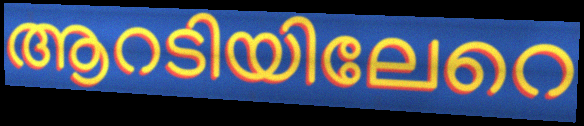
ആറടിയിലേറെ